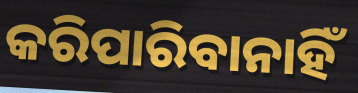
କରିପାରିବାନାହିଁ